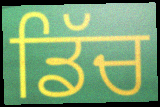
ਡਿੱਚ